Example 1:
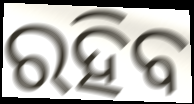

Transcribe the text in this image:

ରହିବ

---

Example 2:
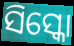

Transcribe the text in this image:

ସିସ୍କୋ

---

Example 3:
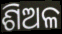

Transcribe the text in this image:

ଶିଅଳ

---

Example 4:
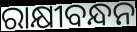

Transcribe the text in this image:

ରାକ୍ଷୀବନ୍ଧନ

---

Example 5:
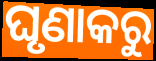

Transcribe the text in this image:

ଘୃଣାକରୁ